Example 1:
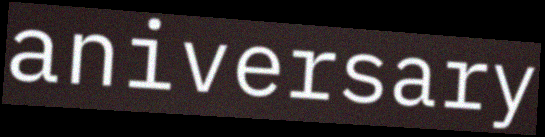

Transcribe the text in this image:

aniversary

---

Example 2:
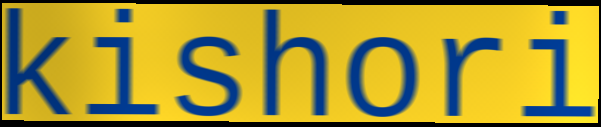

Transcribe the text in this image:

kishori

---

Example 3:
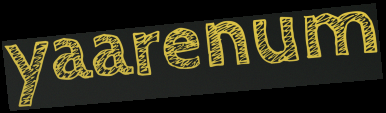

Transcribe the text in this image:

yaarenum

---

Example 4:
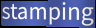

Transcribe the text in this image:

stamping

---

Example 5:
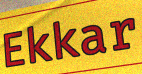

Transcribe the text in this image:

Ekkar